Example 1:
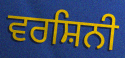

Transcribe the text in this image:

ਵਰਸ਼ਿਨੀ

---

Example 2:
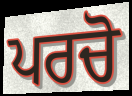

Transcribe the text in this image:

ਪਰਚੋ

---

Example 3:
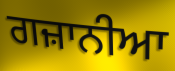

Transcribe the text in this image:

ਗਜ਼ਾਨੀਆ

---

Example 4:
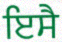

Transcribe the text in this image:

ਇਸੈ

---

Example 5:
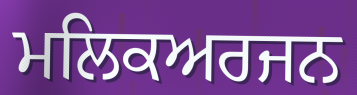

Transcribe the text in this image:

ਮਲਿਕਅਰਜਨ